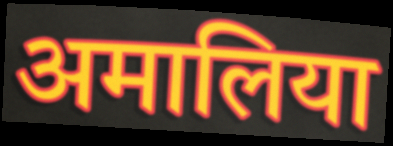
अमालिया